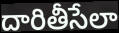
దారితీసేలా